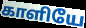
காளியே